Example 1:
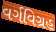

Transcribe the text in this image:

વર્ગવિગ્રહ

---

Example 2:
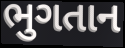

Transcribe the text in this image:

ભુગતાન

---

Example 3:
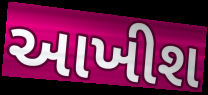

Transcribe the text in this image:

આખીશ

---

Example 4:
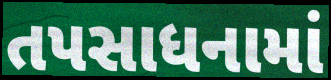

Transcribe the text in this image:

તપસાધનામાં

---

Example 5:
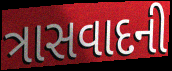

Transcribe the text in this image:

ત્રાસવાદની